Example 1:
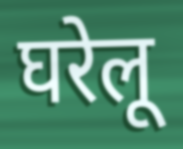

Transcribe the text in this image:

घरेलू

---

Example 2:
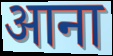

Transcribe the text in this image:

आना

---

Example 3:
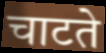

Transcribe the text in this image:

चाटते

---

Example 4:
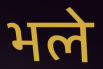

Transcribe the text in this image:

भले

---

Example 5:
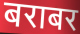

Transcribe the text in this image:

बराबर